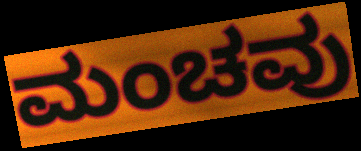
ಮಂಚವು